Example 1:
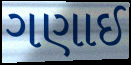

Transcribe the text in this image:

ગણાઈ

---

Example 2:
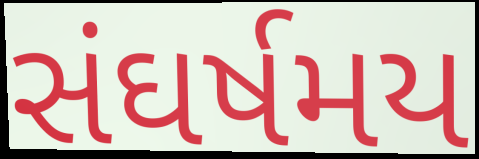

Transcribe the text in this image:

સંઘર્ષમય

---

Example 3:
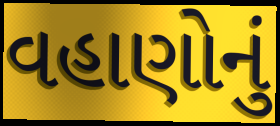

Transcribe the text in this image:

વહાણોનું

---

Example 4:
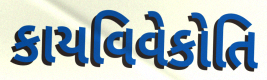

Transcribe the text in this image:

કાયવિવેકોતિ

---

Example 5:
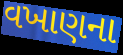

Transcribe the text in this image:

વખાણના